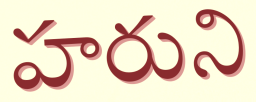
హరుని